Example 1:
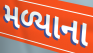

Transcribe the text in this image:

મળ્યાના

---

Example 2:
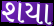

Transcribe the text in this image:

શયા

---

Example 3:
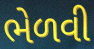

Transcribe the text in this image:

ભેળવી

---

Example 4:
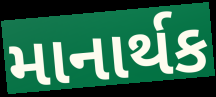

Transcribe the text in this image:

માનાર્થક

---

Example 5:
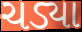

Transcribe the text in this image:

ચડ્યા